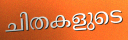
ചിതകളുടെ